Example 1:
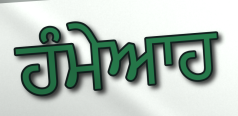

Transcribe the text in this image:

ਹੰਮੇਆਹ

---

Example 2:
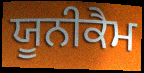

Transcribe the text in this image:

ਯੂਨੀਕੈਮ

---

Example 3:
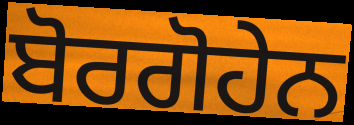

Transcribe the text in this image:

ਬੋਰਗੋਹੇਨ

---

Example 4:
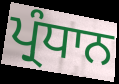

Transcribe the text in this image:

ਪ੍ਰੰਧਾਨ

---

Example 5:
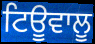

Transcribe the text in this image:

ਟਿਊਵਾਲੂ